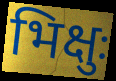
भिक्षुः